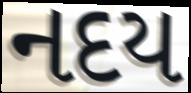
નદય